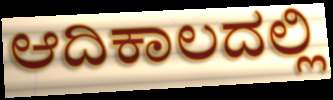
ಆದಿಕಾಲದಲ್ಲಿ